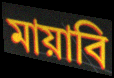
মায়াবি